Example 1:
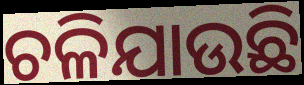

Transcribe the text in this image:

ଚଳିଯାଉଛି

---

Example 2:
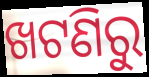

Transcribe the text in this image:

ଖଟଣିରୁ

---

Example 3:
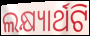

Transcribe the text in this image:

ଲକ୍ଷ୍ୟାର୍ଥଟି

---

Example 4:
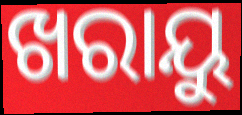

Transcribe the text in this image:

ଖରାୟୁ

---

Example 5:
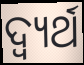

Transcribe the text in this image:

ଦ୍ୱ୍ୟର୍ଥ